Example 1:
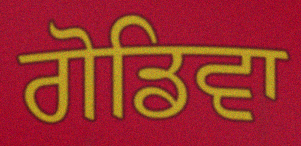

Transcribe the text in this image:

ਗੋਡਿਵਾ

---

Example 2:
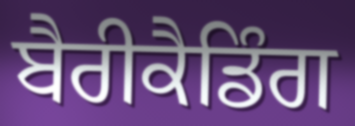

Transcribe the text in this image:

ਬੈਰੀਕੈਡਿੰਗ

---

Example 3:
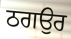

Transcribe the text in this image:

ਠਗਉਰ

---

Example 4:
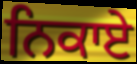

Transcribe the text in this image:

ਨਿਕਾਏ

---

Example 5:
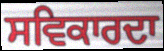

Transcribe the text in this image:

ਸਵਿਕਾਰਦਾ